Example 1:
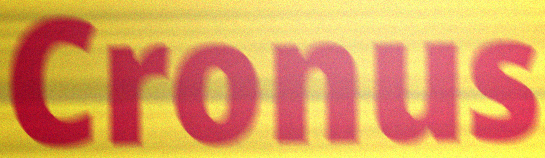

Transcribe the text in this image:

Cronus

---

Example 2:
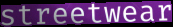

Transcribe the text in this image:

streetwear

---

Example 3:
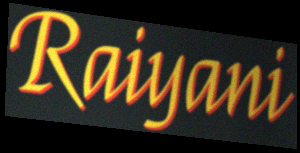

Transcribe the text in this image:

Raiyani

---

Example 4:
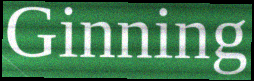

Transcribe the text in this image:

Ginning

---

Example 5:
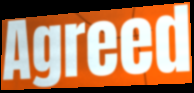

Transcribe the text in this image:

Agreed